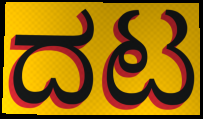
ದಟ